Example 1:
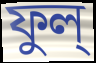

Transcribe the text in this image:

ফুল্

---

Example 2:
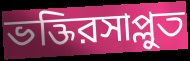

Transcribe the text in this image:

ভক্তিরসাপ্লুত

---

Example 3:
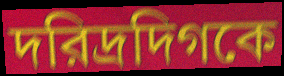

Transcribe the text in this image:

দরিদ্রদিগকে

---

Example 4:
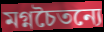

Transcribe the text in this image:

মগ্নচৈতন্যে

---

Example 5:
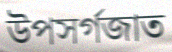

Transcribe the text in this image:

উপসর্গজাত